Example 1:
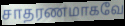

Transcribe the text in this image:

சாதரணமாகவே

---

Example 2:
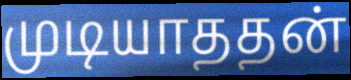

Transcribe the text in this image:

முடியாததன்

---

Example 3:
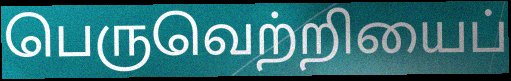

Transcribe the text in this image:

பெருவெற்றியைப்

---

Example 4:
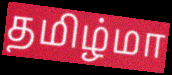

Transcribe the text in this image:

தமிழ்மா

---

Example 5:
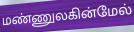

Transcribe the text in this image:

மண்ணுலகின்மேல்